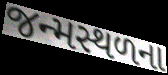
જન્મસ્થળના